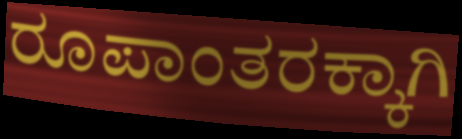
ರೂಪಾಂತರಕ್ಕಾಗಿ